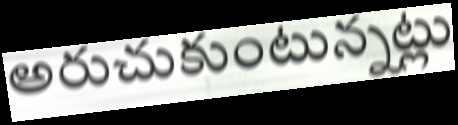
అరుచుకుంటున్నట్లు